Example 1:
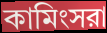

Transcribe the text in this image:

কামিংসরা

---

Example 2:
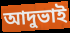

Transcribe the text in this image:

আদুভাই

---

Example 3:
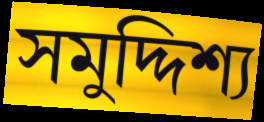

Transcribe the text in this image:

সমুদ্দিশ্য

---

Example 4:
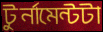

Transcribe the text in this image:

টুর্নামেন্টটা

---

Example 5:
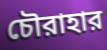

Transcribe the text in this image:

চৌরাহার